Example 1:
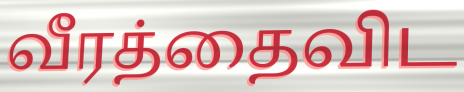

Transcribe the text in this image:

வீரத்தைவிட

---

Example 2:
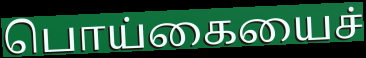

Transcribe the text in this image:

பொய்கையைச்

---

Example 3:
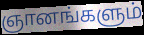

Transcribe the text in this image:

ஞானங்களும்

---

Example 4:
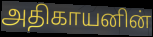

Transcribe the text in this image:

அதிகாயனின்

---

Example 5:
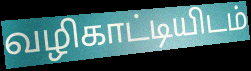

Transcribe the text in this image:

வழிகாட்டியிடம்